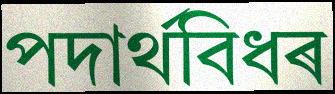
পদাৰ্থবিধৰ